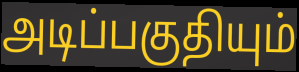
அடிப்பகுதியும்